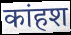
कांहश